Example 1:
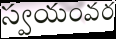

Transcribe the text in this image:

స్వయంవర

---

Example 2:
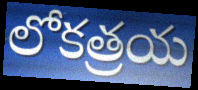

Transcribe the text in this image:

లోకత్రయ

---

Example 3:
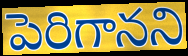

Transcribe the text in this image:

పెరిగానని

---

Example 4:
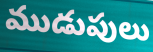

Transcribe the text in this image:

ముడుపులు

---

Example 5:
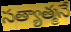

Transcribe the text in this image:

సత్యాత్మనే